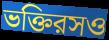
ভক্তিরসও